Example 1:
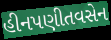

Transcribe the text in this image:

હીનપણીતવસેન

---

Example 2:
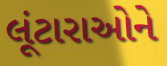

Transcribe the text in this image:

લૂંટારાઓને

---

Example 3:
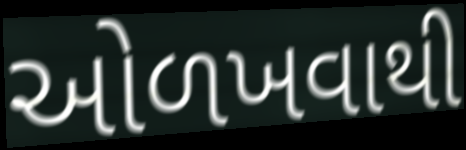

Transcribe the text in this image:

ઓળખવાથી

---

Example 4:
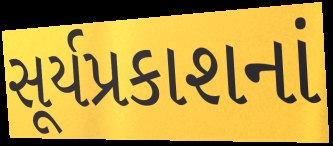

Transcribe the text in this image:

સૂર્યપ્રકાશનાં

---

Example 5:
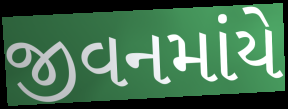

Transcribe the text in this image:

જીવનમાંયે